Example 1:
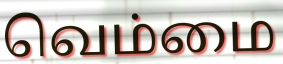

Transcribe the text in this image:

வெம்மை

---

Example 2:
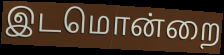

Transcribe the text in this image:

இடமொன்றை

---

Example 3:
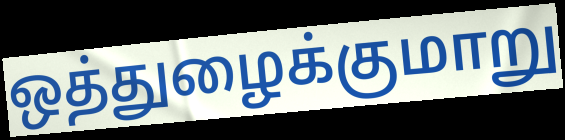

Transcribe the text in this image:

ஒத்துழைக்குமாறு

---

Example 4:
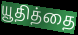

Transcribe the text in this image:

யூதித்தை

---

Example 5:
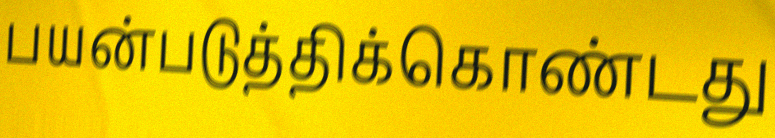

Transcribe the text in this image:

பயன்படுத்திக்கொண்டது